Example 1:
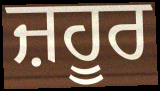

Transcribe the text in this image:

ਜ਼ਹੂਰ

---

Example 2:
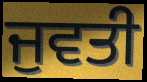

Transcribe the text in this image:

ਜੁਵਤੀ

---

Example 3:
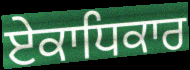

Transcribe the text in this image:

ਏਕਾਧਿਕਾਰ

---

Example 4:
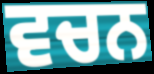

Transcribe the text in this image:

ਵਚਨ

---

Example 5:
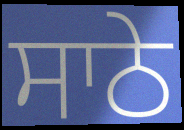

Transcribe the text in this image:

ਸਾਠੇ